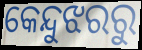
କେନ୍ଦୁଝରରୁ